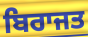
ਬਿਰਾਜਤ